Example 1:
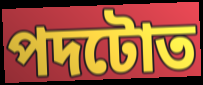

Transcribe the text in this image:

পদটোত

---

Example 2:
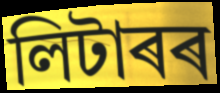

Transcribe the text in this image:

লিটাৰৰ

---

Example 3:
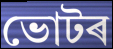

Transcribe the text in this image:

ভোটৰ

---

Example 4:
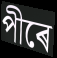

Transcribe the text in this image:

পীৰে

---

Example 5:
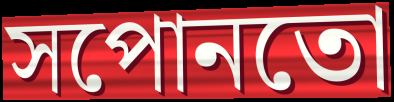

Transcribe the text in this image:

সপোনতো